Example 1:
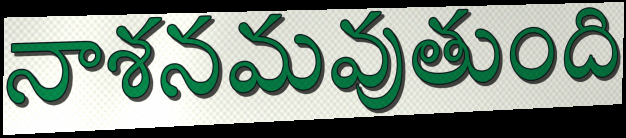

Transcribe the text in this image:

నాశనమవుతుంది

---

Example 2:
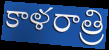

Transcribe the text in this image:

కాళరాత్రి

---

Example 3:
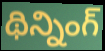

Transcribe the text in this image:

థిన్నింగ్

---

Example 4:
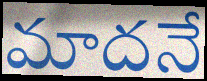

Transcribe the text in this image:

మాదనే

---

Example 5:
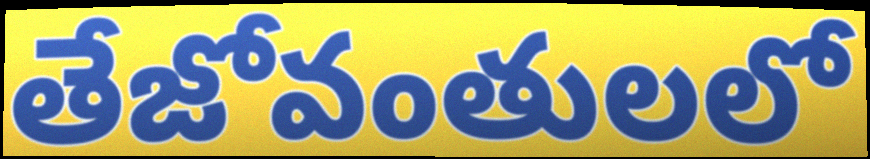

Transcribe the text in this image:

తేజోవంతులలో